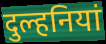
दुल्हनियां